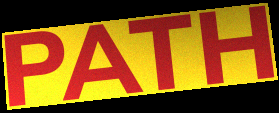
PATH